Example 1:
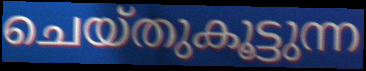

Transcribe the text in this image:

ചെയ്തുകൂട്ടുന്ന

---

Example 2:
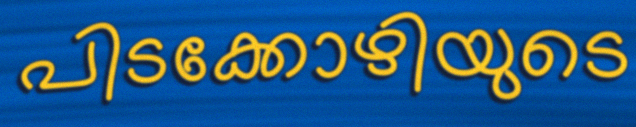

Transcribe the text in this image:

പിടക്കോഴിയുടെ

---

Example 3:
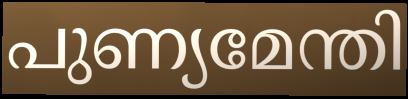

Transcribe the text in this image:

പുണ്യമേന്തി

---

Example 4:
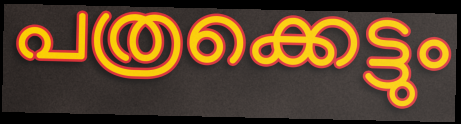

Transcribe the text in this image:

പത്രക്കെട്ടും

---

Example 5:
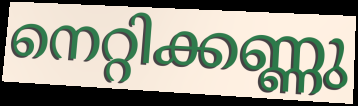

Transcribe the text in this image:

നെറ്റിക്കണ്ണു